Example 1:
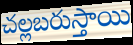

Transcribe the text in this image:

చల్లబరుస్తాయి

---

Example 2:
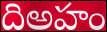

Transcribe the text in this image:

దిఅహం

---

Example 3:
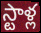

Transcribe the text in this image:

స్టాళ్ల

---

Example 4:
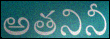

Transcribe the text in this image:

అతనినీ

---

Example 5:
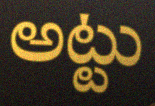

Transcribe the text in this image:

అట్టు